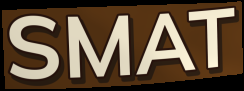
SMAT